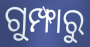
ଗୁମ୍ଫାରୁ